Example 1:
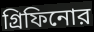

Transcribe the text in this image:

গ্রিফিনোর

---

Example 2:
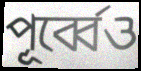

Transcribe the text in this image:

পূর্ব্বেও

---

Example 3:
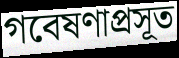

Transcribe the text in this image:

গবেষণাপ্রসূত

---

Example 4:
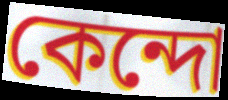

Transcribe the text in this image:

কেন্দো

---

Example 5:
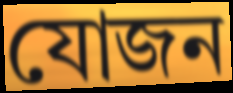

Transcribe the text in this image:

যোজন